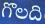
గొలది